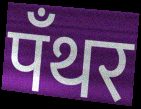
पँथर